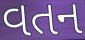
વતન